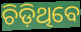
ଚିଡ଼ିଥିବେ